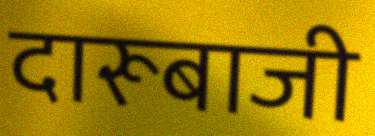
दारूबाजी